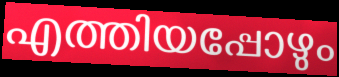
എത്തിയപ്പോഴും